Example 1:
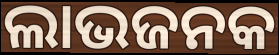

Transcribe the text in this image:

ଲାଭଜନକ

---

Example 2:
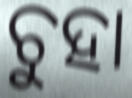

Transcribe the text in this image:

ଚୁହା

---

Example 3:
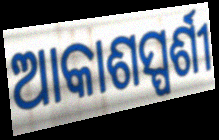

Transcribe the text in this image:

ଆକାଶସ୍ପର୍ଶୀ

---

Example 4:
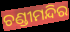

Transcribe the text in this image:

ଚଣ୍ଡୀମନ୍ଦିର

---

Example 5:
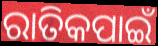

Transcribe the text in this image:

ରାତିକପାଇଁ